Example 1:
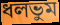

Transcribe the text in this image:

ধলভুম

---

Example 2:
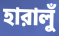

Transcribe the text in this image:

হারালুঁ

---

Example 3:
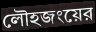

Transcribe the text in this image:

লৌহজংয়ের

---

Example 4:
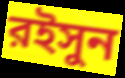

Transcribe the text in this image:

রইসুন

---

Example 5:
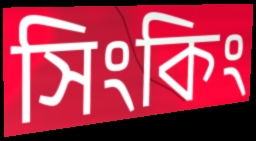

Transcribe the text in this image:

সিংকিং